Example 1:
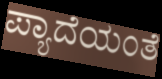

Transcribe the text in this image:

ಪ್ಯಾದೆಯಂತೆ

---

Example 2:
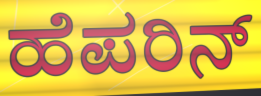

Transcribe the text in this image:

ಹೆಪರಿನ್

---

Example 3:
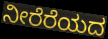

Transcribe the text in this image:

ನೀರೆರೆಯದ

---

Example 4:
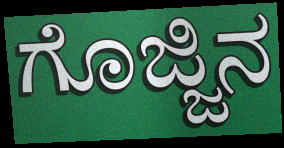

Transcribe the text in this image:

ಗೊಜ್ಜಿನ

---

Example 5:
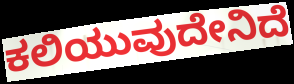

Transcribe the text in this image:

ಕಲಿಯುವುದೇನಿದೆ